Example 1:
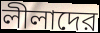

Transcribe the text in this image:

লীলাদের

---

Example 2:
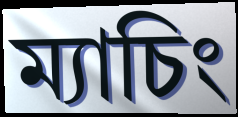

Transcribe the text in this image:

ম্যাচিং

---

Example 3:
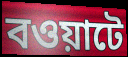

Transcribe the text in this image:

বওয়াটে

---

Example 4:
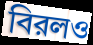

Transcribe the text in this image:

বিরলও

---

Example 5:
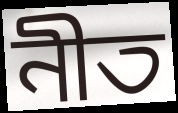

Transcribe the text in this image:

নীত